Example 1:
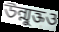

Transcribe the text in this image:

উন্মুক্তও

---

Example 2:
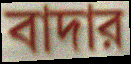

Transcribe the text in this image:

বাদার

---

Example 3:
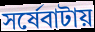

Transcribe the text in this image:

সর্ষেবাটায়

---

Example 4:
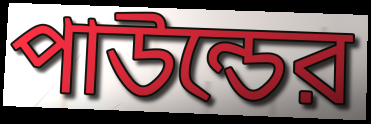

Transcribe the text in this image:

পাউন্ডের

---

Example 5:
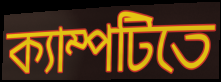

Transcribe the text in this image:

ক্যাম্পটিতে